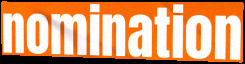
nomination